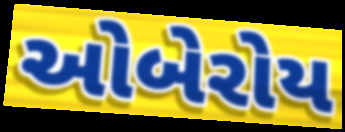
ઓબેરોય